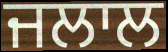
ਜਲਾਲ